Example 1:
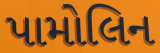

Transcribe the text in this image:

પામોલિન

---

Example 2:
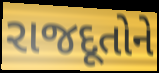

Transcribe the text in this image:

રાજદૂતોને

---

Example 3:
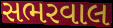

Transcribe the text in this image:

સભરવાલ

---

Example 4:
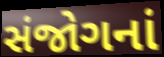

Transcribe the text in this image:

સંજોગનાં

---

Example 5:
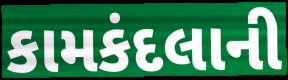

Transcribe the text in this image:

કામકંદલાની